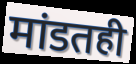
मांडतही